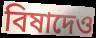
বিষাদেও